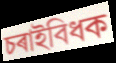
চৰাইবিধক